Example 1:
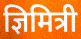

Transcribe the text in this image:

ज्ञिमित्री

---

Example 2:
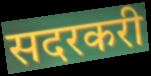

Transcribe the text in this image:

सदरकरी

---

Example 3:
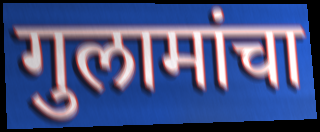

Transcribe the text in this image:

गुलामांचा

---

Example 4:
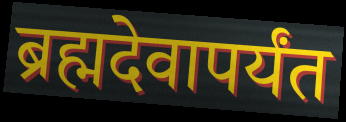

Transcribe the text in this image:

ब्रह्मदेवापर्यंत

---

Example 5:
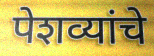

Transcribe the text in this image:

पेशव्यांचे